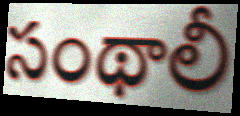
సంథాలీ